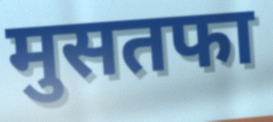
मुसतफा